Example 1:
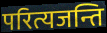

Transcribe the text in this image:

परित्यजन्ति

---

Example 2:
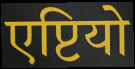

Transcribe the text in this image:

एप्टियो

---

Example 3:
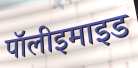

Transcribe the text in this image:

पॉलीइमाइड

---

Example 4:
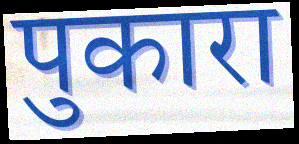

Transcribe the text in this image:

पुकारा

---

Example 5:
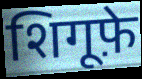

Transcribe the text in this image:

शिगूफ़े